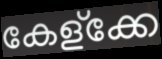
കേള്ക്കേ